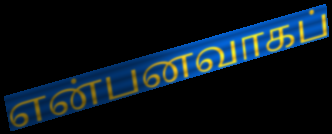
என்பனவாகப்